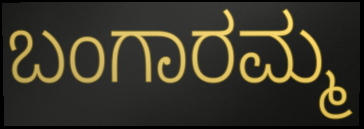
ಬಂಗಾರಮ್ಮ